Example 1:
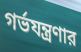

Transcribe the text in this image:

গর্ভযন্ত্রণার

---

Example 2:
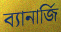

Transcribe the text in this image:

ব্যানার্জি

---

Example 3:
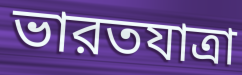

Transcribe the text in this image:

ভারতযাত্রা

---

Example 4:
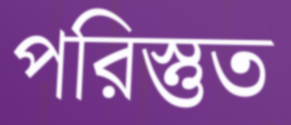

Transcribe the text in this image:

পরিস্তুত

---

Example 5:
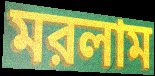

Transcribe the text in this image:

মরলাম